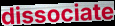
dissociate